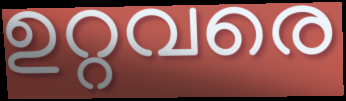
ഉറ്റവരെ